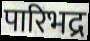
पारिभद्र